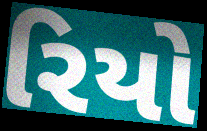
રિયો